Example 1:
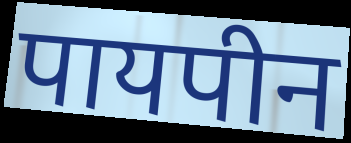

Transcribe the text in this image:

पायपीन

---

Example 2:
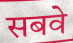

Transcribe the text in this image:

सबवे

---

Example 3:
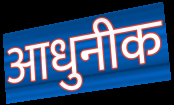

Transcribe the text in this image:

आधुनीक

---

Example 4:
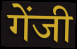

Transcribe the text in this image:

गेंजी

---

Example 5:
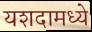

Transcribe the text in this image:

यशदामध्ये